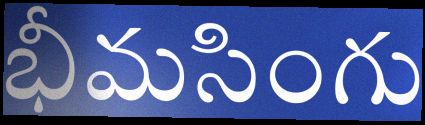
భీమసింగు